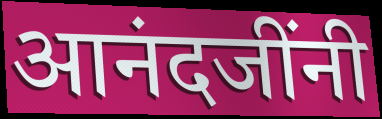
आनंदजींनी